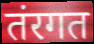
तंरगत